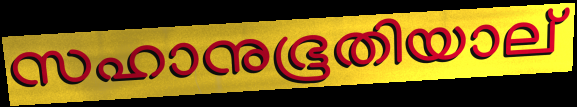
സഹാനുഭൂതിയാല്